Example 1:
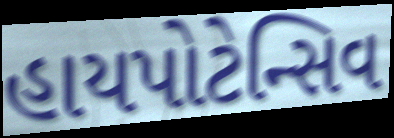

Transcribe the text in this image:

હાયપોટેન્સિવ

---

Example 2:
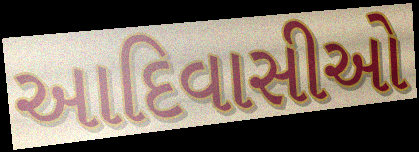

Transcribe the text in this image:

આદિવાસીઓ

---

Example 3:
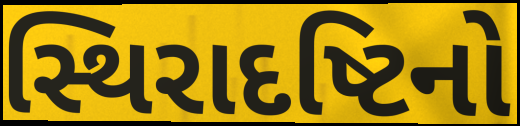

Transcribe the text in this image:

સ્થિરાદષ્ટિનો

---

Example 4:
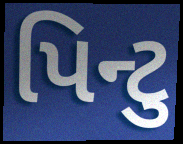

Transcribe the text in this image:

પિન્ટુ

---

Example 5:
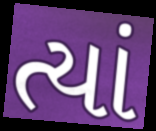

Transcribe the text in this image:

ત્યાં